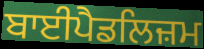
ਬਾਈਪੈਡਲਿਜ਼ਮ